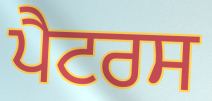
ਪੈਟਰਸ